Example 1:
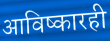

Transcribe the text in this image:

आविष्कारही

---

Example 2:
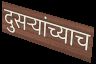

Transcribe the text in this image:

दुसऱ्यांच्याच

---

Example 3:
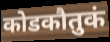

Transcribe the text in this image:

कोडकौतुकं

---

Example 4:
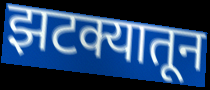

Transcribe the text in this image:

झटक्यातून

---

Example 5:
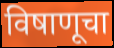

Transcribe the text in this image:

विषाणूचा